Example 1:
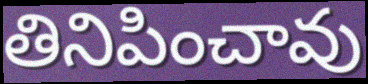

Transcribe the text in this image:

తినిపించావు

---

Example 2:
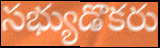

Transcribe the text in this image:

సభ్యుడొకరు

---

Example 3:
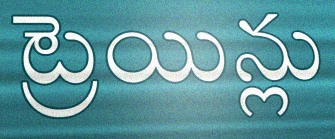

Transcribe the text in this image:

ట్రెయిన్లు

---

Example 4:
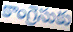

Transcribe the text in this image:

కాంగ్రెసుకు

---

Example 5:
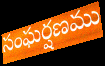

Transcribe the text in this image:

సంఘర్షణము